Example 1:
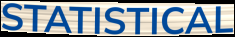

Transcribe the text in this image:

STATISTICAL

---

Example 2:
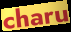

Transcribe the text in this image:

charu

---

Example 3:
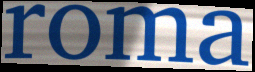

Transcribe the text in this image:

roma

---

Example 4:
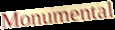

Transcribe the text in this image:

Monumental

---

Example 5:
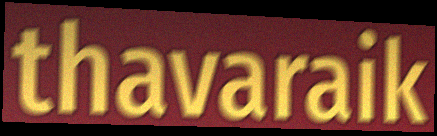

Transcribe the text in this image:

thavaraik